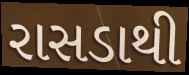
રાસડાથી